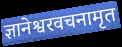
ज्ञानेश्वरवचनामृत